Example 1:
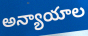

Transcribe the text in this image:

అన్యాయాల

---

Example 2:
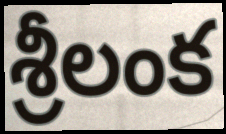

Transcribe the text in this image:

శ్రీలంక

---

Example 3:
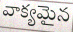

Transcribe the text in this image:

వాక్యమైన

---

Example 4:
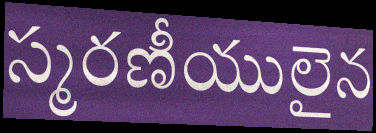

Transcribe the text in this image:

స్మరణీయులైన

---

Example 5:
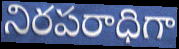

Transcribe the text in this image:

నిరపరాధిగా